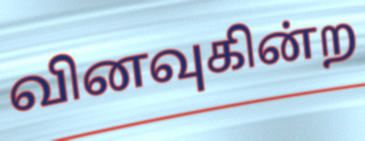
வினவுகின்ற